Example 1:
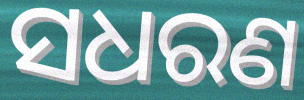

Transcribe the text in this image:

ସଧରଣ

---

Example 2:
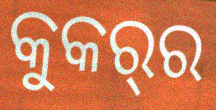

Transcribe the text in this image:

କୁକର୍‌ର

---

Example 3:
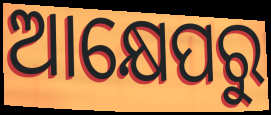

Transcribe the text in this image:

ଆକ୍ଷେପରୁ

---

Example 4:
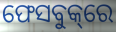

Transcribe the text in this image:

ଫେସବୁକ୍‌ରେ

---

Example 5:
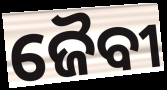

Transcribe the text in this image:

ଜୈବୀ